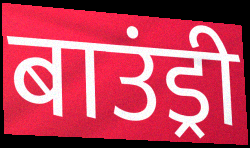
बाउंड्री